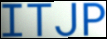
ITJP